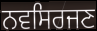
ਨਵਸਿਰਜਣ